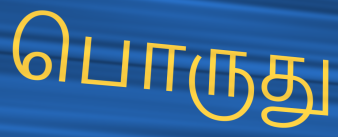
பொருது